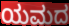
ಯಮದ